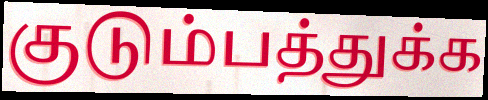
குடும்பத்துக்க